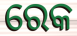
ରେକ